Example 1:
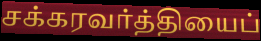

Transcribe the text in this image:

சக்கரவர்த்தியைப்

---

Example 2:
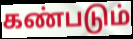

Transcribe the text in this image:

கண்படும்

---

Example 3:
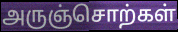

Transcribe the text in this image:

அருஞ்சொற்கள்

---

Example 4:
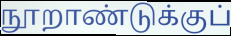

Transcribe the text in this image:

நூறாண்டுக்குப்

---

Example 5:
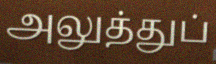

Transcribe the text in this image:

அலுத்துப்